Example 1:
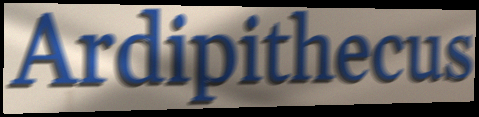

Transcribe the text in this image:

Ardipithecus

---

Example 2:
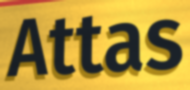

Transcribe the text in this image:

Attas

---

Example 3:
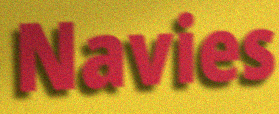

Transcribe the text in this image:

Navies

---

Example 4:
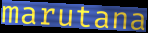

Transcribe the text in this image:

marutana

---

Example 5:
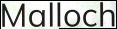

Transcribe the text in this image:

Malloch